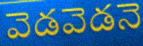
వెడవెడనె